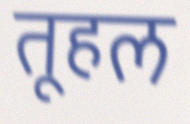
तूहल